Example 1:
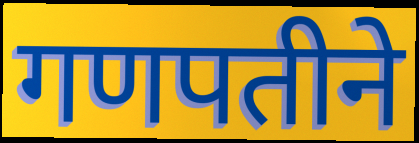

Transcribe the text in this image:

गणपतीने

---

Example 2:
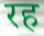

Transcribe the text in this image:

रह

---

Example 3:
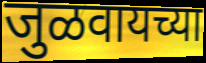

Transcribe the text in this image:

जुळवायच्या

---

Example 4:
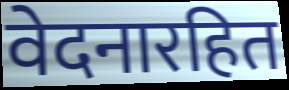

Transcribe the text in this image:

वेदनारहित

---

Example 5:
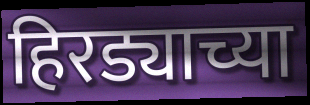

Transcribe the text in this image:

हिरड्याच्या